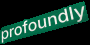
profoundly